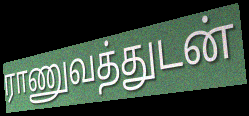
ராணுவத்துடன்